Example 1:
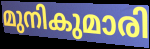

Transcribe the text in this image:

മുനികുമാരി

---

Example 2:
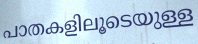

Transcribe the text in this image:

പാതകളിലൂടെയുള്ള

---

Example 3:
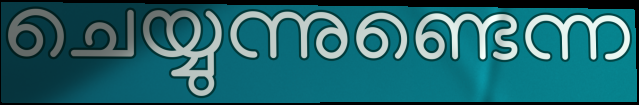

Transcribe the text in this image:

ചെയ്യുന്നുണ്ടെന്ന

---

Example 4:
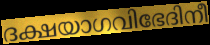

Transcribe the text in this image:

ദക്ഷയാഗവിഭേദിനീ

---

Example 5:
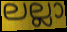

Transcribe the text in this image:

ലല്ലാ